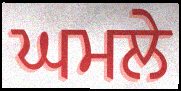
ਘਮਲੇ